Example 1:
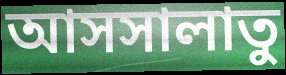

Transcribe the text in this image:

আসসালাতু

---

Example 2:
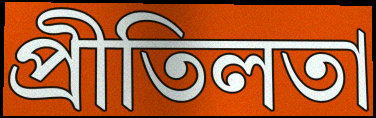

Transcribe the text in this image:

প্রীতিলতা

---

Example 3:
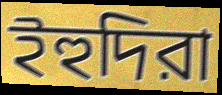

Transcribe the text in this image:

ইহুদিরা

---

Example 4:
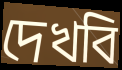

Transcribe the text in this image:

দেখবি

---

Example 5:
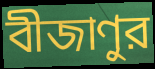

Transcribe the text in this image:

বীজাণুর